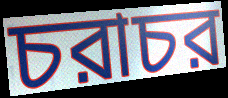
চরাচর